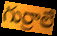
గుర్రాలే